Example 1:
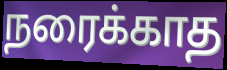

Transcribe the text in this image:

நரைக்காத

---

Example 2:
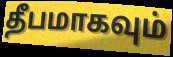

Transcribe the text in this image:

தீபமாகவும்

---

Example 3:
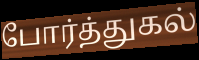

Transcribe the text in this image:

போர்த்துகல்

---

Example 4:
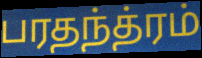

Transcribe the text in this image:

பரதந்த்ரம்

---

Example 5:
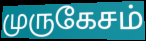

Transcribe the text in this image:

முருகேசம்